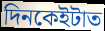
দিনকেইটাত